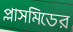
প্লাসমিডের